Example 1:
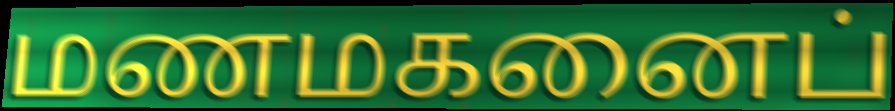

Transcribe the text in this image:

மணமகனைப்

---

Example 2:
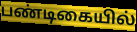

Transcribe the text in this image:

பண்டிகையில்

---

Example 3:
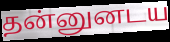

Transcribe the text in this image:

தன்னுனடய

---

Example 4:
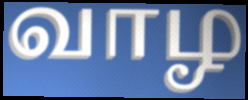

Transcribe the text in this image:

வாழ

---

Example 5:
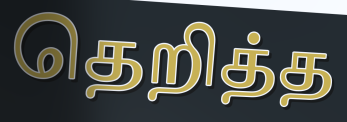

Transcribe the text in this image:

தெறித்த